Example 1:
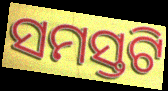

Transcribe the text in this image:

ସମସ୍ତଟି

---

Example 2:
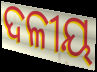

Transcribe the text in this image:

ଦଳୀୟ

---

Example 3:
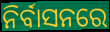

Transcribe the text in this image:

ନିର୍ବାସନରେ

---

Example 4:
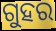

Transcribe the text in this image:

ଗୁହର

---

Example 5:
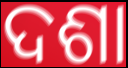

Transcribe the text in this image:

ଦଶା